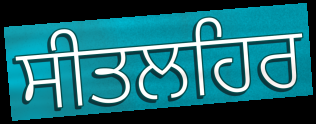
ਸੀਤਲਹਿਰ